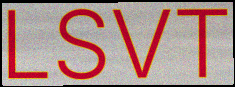
LSVT